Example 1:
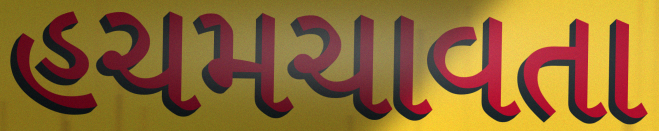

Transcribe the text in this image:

હચમચાવતા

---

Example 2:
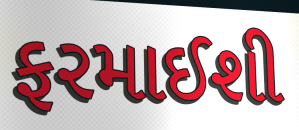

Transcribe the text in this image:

ફરમાઈશી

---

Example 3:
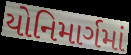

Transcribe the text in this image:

યોનિમાર્ગમાં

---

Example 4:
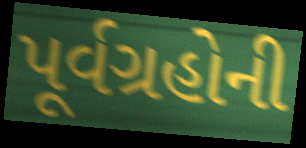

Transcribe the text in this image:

પૂર્વગ્રહોની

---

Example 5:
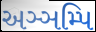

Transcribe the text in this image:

અઞ્ઞમ્પિ